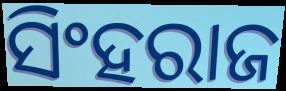
ସିଂହରାଜ